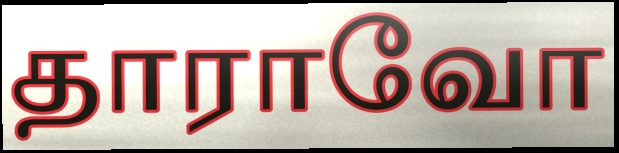
தாராவோ